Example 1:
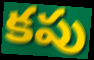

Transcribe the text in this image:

కపు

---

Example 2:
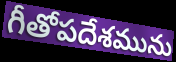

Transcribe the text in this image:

గీతోపదేశమును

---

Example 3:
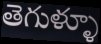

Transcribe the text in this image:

తెగుళ్ళూ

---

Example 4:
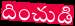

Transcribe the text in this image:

దించుడి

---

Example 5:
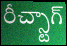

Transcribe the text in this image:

రీచ్స్టాగ్